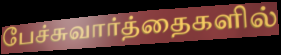
பேச்சுவார்த்தைகளில்